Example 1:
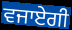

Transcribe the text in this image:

ਵਜਾਏਗੀ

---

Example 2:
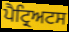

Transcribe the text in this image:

ਪੈਟ੍ਰਿਅਟਸ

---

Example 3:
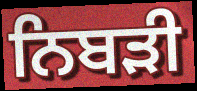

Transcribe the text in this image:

ਨਿਬੜੀ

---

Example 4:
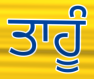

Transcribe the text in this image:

ਤਾਹੂੰ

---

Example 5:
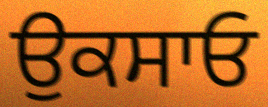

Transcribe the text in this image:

ਉਕਸਾਓ